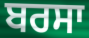
ਬਰਸਾ